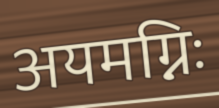
अयमग्निः